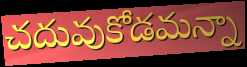
చదువుకోడమన్నా